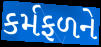
કર્મફળને